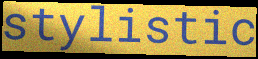
stylistic